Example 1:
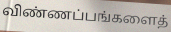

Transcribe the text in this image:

விண்ணப்பங்களைத்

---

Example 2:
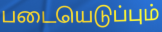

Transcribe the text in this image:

படையெடுப்பும்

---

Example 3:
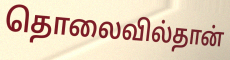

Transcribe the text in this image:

தொலைவில்தான்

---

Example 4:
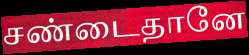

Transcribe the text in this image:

சண்டைதானே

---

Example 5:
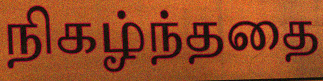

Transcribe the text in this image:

நிகழ்ந்ததை